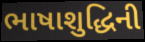
ભાષાશુદ્ધિની